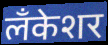
लँकेशर